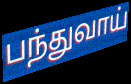
பந்துவாய்